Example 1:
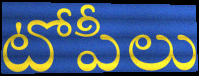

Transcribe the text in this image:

టోపీలు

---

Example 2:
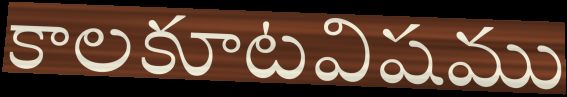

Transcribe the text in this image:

కాలకూటవిషము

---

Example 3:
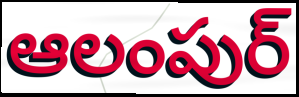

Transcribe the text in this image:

ఆలంపుర్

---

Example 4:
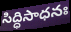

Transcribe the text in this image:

సిద్ధిసాధనః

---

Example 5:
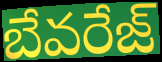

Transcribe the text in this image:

బేవరేజ్